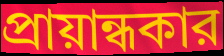
প্রায়ান্ধকার